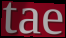
tae